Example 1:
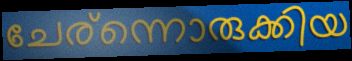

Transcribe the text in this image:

ചേര്ന്നൊരുക്കിയ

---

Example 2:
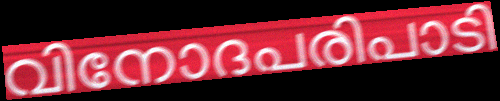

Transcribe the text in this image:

വിനോദപരിപാടി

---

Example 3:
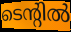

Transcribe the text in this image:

ടെന്റിൽ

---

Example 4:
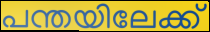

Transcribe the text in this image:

പന്തയിലേക്ക്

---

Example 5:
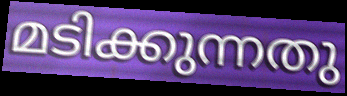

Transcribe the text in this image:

മടിക്കുന്നതു